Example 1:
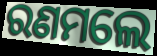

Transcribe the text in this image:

ରଣମଲେ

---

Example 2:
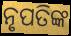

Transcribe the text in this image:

ନୃପତିଙ୍କ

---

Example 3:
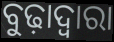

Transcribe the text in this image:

ବୁଢ଼ାଦ୍ୱାରା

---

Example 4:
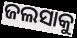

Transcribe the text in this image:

ଜଲସାକୁ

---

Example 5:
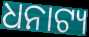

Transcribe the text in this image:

ଧନାଟ୍ୟ